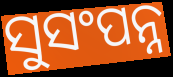
ସୁସଂପନ୍ନ